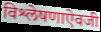
विश्लेषणाऐवजी